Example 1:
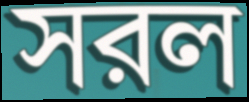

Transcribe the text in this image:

সরল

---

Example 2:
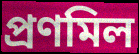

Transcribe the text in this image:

প্রণমিল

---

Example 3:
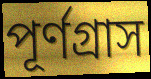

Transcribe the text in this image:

পূর্ণগ্রাস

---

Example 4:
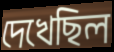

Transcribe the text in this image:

দেখেছিল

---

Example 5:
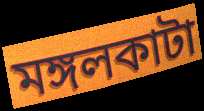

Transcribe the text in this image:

মঙ্গলকাটা